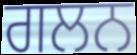
ਗਲਨ